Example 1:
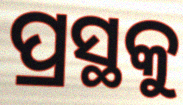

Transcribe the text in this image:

ପ୍ରସ୍ଥକୁ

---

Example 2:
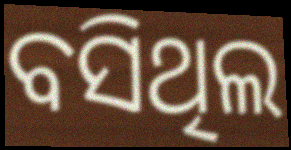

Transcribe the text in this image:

ବସିଥିଲ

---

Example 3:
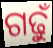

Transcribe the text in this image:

ଗଢ଼ୁଁ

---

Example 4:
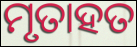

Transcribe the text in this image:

ମୃତାହତ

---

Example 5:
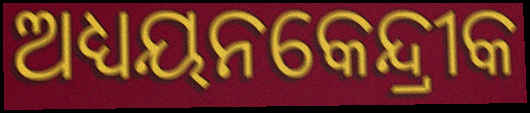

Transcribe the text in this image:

ଅଧ୍ୟୟନକେନ୍ଦ୍ରୀକ